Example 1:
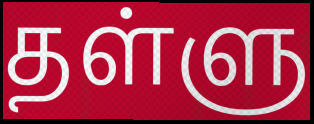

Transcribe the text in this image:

தள்ளு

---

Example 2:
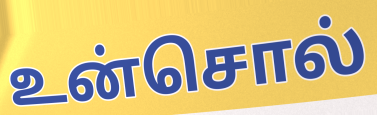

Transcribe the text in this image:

உன்சொல்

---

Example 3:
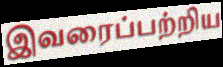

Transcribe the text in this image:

இவரைப்பற்றிய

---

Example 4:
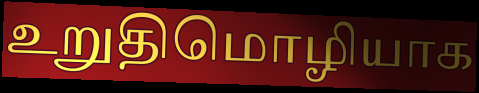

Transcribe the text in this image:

உறுதிமொழியாக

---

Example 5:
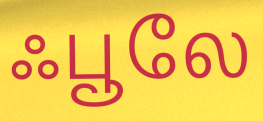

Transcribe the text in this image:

ஃபூலே